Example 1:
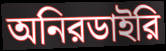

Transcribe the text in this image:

অনিরডাইরি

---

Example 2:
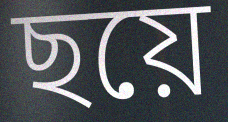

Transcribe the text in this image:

ছয়ে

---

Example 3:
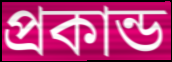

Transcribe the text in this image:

প্রকান্ড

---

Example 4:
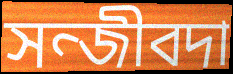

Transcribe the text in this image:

সন্জীবদা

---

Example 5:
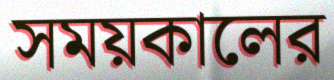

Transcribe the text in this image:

সময়কালের